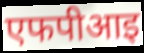
एफपीआइ